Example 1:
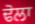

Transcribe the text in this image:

ਢੋਲਾ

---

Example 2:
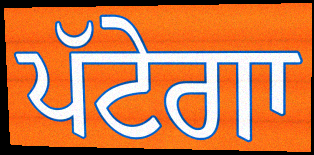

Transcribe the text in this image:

ਪੱਟੇਗਾ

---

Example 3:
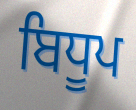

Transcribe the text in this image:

ਬਿਧੂਪ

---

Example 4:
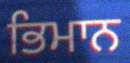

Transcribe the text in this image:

ਭਿਮਾਨ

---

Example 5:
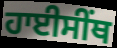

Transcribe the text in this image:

ਹਾਈਸੀੰਥ